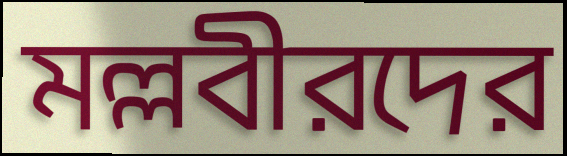
মল্লবীরদের